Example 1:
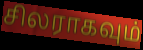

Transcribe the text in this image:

சிலராகவும்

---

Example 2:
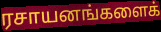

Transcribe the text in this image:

ரசாயனங்களைக்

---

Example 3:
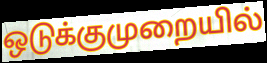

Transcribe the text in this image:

ஒடுக்குமுறையில்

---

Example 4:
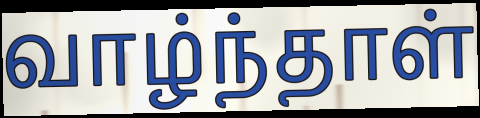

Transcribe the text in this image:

வாழ்ந்தாள்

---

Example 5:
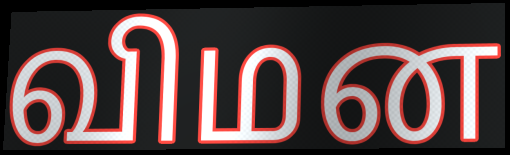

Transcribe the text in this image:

விமன